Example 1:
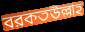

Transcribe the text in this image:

বরকতউল্লাহ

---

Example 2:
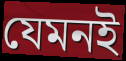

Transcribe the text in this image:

যেমনই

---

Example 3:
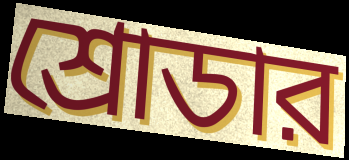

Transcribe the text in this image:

শ্রোডার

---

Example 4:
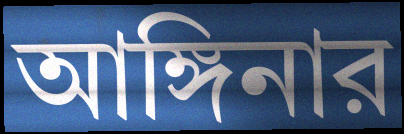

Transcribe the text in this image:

আঙ্গিনার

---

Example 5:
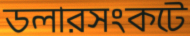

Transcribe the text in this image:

ডলারসংকটে